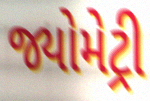
જ્યોમેટ્રી